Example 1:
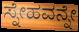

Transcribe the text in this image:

ಸ್ನೇಹವನ್ನೇ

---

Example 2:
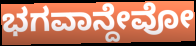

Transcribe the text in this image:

ಭಗವಾನ್ದೇವೋ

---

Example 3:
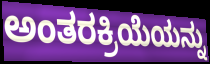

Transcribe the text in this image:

ಅಂತರಕ್ರಿಯೆಯನ್ನು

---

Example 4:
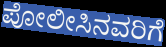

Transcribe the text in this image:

ಪೋಲೀಸಿನವರಿಗೆ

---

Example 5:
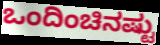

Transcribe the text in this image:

ಒಂದಿಂಚಿನಷ್ಟು